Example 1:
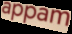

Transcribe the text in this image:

appam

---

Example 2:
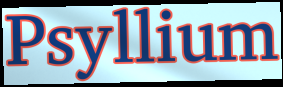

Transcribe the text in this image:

Psyllium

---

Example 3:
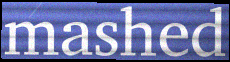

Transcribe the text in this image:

mashed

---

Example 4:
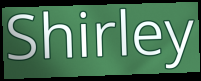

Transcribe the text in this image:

Shirley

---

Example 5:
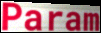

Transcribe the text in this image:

Param